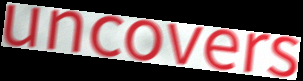
uncovers